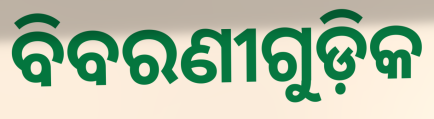
ବିବରଣୀଗୁଡ଼ିକ